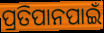
ପ୍ରତିପାନପାଇଁ